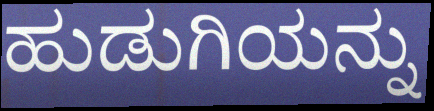
ಹುಡುಗಿಯನ್ನು